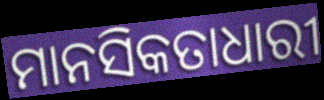
ମାନସିକତାଧାରୀ